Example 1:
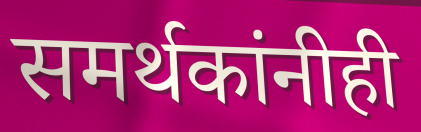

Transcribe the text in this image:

समर्थकांनीही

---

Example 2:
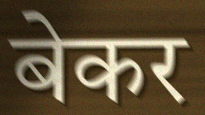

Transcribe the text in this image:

बेकर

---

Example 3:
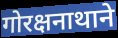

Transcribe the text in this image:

गोरक्षनाथाने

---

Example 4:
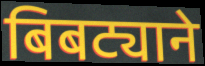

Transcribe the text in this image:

बिबट्याने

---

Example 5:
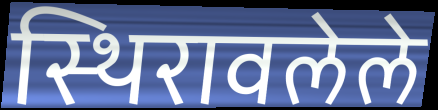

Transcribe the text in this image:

स्थिरावलेले